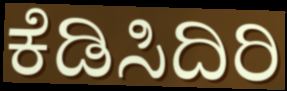
ಕೆಡಿಸಿದಿರಿ